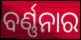
ବର୍ଣ୍ଣନାର